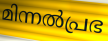
മിന്നൽപ്രഭ